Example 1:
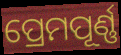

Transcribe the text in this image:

ପ୍ରେମପୂର୍ଣ୍ଣ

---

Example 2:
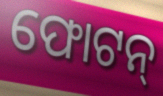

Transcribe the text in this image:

ଫୋଟନ୍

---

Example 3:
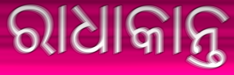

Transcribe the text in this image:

ରାଧାକାନ୍ତ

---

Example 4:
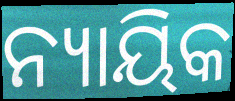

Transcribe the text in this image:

ନ୍ୟାୟିକ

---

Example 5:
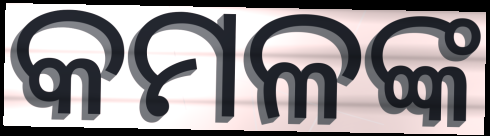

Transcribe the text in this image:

କମଳଙ୍କ